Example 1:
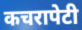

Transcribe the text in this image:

कचरापेटी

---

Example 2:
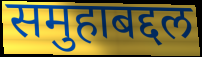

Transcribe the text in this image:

समुहाबद्दल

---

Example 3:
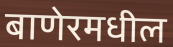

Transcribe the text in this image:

बाणेरमधील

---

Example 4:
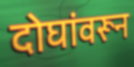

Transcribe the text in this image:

दोघांवरून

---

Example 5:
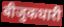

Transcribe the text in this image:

बीजुकधारी